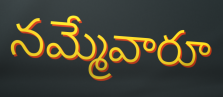
నమ్మేవారూ